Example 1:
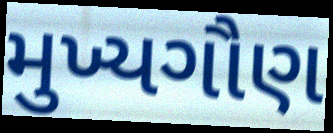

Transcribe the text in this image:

મુખ્યગૌણ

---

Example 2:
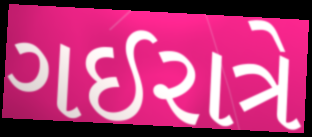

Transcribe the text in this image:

ગઈરાત્રે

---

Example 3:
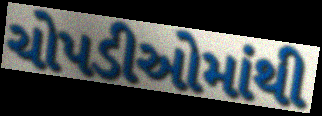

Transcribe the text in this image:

ચોપડીઓમાંથી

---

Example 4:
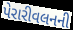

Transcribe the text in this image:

પેરારીવલનની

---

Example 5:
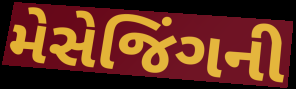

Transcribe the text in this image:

મેસેજિંગની